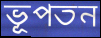
ভূপতন